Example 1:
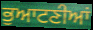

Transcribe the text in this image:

ਭੁਆਟਣੀਆਂ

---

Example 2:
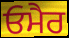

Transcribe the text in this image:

ਓਮੈਰ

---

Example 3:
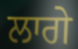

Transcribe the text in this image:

ਲਾਗੇ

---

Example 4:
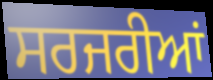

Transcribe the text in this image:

ਸਰਜਰੀਆਂ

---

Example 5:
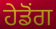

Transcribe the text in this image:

ਹੇਡੋਂਗ